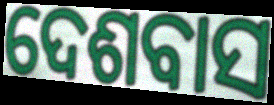
ଦେଶବାସ